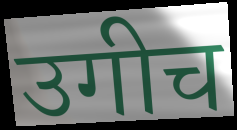
उगीच